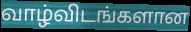
வாழ்விடங்களான